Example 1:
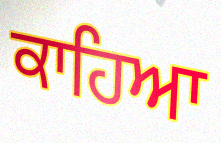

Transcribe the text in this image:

ਕਾਹਿਆ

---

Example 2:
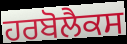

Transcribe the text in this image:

ਹਰਬੋਲੈਕਸ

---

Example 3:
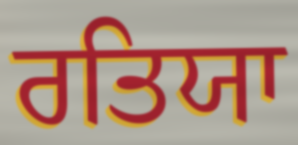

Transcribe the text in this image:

ਰਤਿਯਾ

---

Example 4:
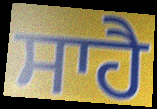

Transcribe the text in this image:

ਸਾਹੈ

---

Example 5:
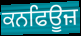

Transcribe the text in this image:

ਕਨਫਿਊਜ਼